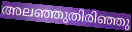
അലഞ്ഞുതിരിഞ്ഞു